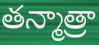
తన్మాత్రా